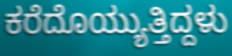
ಕರೆದೊಯ್ಯುತ್ತಿದ್ದಳು